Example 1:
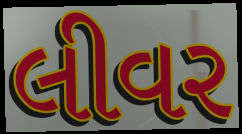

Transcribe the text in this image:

લીવર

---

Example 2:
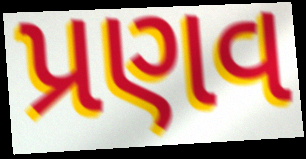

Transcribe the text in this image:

પ્રણવ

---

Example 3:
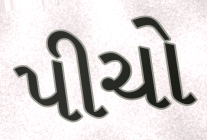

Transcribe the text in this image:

પીચો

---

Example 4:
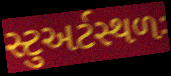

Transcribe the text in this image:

સ્ટુઅર્ટસ્થળઃ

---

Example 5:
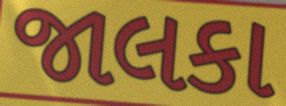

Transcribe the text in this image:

જાલકા